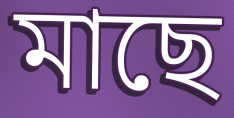
মাছে